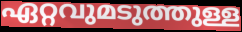
ഏറ്റവുമടുത്തുള്ള